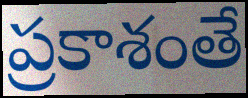
ప్రకాశంతే